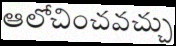
ఆలోచించవచ్చు